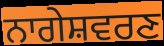
ਨਾਗੇਸ਼ਵਰਣ